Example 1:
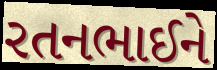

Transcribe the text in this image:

રતનભાઈને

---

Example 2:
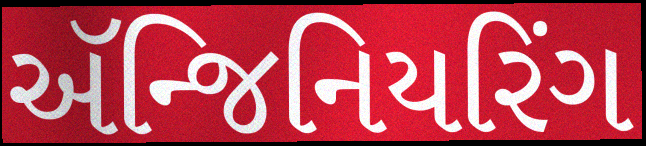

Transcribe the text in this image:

ઍન્જિનિયરિંગ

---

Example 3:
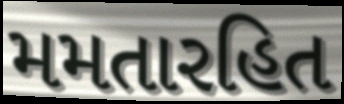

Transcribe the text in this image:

મમતારહિત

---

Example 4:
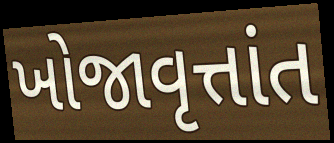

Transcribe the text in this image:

ખોજાવૃત્તાંત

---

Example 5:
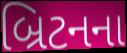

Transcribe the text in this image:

બ્રિટનના